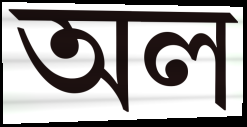
অল